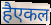
हैएकल